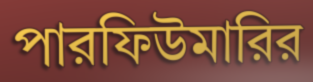
পারফিউমারির